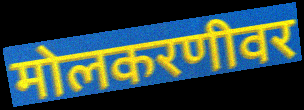
मोलकरणीवर